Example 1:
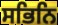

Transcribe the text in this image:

ਸਭਿਨਿ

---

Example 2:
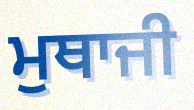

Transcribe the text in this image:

ਮੁਥਾਜੀ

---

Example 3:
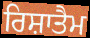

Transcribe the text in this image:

ਰਿਸ਼ਾਤੈਮ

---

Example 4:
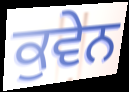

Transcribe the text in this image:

ਕੁਵੇਨ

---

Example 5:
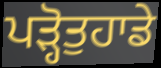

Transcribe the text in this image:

ਪੜ੍ਹੋਤੁਹਾਡੇ